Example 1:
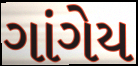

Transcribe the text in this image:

ગાંગેય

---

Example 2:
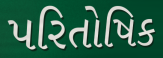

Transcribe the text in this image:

પરિતોષિક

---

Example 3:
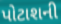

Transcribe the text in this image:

પોટાશની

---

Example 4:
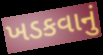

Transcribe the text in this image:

ખડકવાનું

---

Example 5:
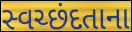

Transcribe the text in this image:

સ્વચ્છંદતાના